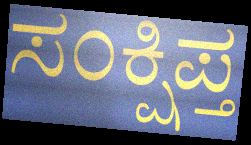
ಸಂಕ್ಷಿಪ್ತ